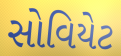
સોવિયેટ